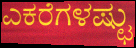
ಎಕರೆಗಳಷ್ಟು